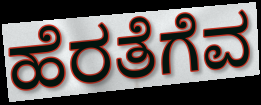
ಹೆರತೆಗೆವ